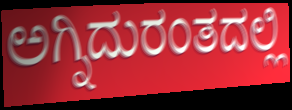
ಅಗ್ನಿದುರಂತದಲ್ಲಿ